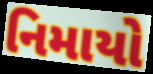
નિમાયો